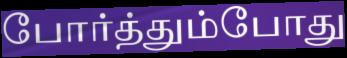
போர்த்தும்போது